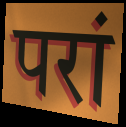
परां